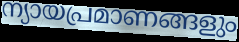
ന്യായപ്രമാണങ്ങളും